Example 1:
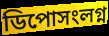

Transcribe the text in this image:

ডিপোসংলগ্ন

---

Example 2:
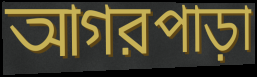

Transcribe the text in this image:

আগরপাড়া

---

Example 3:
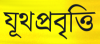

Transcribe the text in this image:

যূথপ্রবৃত্তি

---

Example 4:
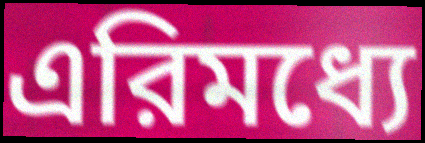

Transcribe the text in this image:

এরিমধ্যে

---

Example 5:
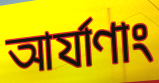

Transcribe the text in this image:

আর্যাণাং